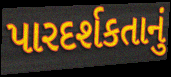
પારદર્શકતાનું